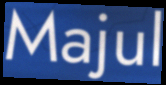
Majul